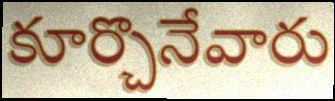
కూర్చొనేవారు